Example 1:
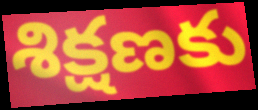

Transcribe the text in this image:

శిక్షణకు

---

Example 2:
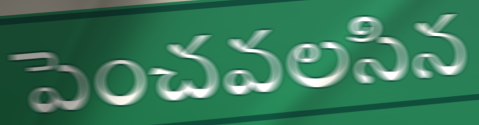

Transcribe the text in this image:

పెంచవలసిన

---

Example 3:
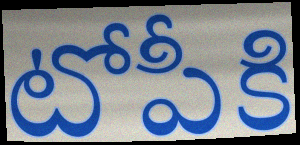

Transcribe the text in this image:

టోపీకి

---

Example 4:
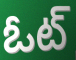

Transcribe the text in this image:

ఓట్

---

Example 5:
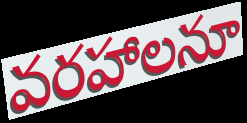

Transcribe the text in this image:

వరహాలనూ